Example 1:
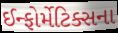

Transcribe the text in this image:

ઈન્ફોર્મેટિક્સના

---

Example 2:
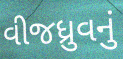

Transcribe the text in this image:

વીજધ્રુવનું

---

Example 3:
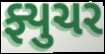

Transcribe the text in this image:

ફ્યુચર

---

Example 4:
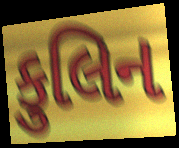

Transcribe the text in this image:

કુલિન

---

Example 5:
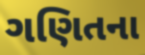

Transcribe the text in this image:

ગણિતના